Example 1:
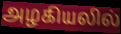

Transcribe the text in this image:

அழகியலில்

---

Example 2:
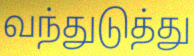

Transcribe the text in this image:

வந்துடுத்து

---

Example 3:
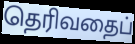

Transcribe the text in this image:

தெரிவதைப்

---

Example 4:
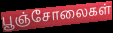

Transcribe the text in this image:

பூஞ்சோலைகள்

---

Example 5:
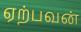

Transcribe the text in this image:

ஏற்பவன்